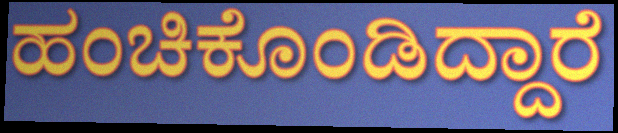
ಹಂಚಿಕೊಂಡಿದ್ದಾರೆ